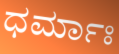
ಧರ್ಮಾಃ